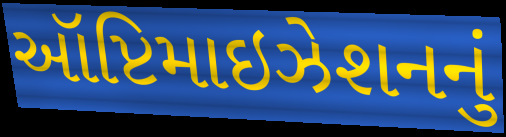
ઑપ્ટિમાઇઝેશનનું